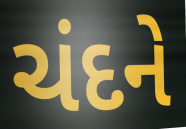
ચંદને